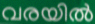
വരയിൽ